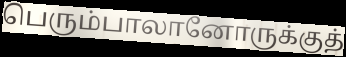
பெரும்பாலானோருக்குத்